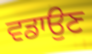
ਵਡਾਉਣ